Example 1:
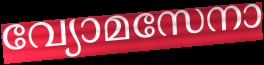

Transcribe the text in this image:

വ്യോമസേനാ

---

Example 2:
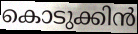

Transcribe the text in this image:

കൊടുക്കിൻ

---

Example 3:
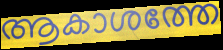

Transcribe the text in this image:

ആകാശത്തേ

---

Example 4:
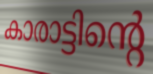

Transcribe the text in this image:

കാരാട്ടിന്റെ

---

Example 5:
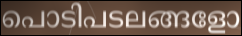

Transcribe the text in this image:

പൊടിപടലങ്ങളോ